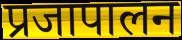
प्रजापालन